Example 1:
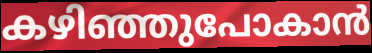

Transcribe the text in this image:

കഴിഞ്ഞുപോകാൻ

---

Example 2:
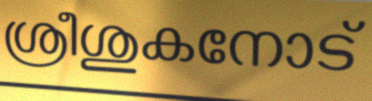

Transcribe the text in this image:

ശ്രീശുകനോട്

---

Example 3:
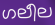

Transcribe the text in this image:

ഗലീല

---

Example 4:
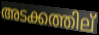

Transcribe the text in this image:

അടക്കത്തില്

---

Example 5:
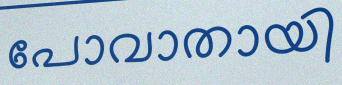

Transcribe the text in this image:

പോവാതായി